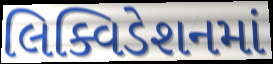
લિક્વિડેશનમાં